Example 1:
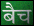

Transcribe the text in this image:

बैच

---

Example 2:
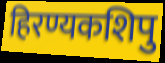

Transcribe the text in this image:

हिरण्यकशिपु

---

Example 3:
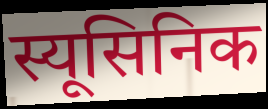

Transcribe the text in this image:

स्यूसिनिक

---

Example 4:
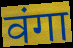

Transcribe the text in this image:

वंगा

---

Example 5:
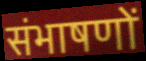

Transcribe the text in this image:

संभाषणों